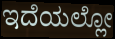
ಇದೆಯಲ್ಲೋ